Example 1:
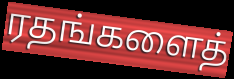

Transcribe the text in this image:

ரதங்களைத்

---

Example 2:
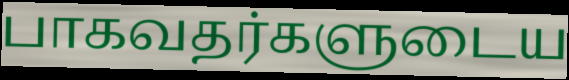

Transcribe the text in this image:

பாகவதர்களுடைய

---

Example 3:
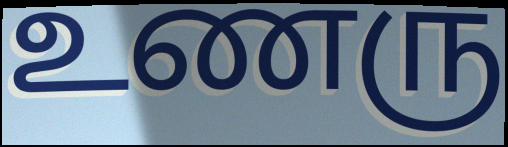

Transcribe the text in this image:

உணரு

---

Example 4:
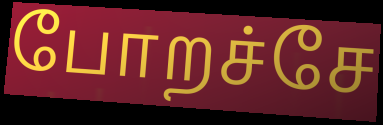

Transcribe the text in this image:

போறச்சே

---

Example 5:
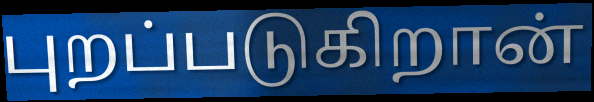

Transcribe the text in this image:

புறப்படுகிறான்